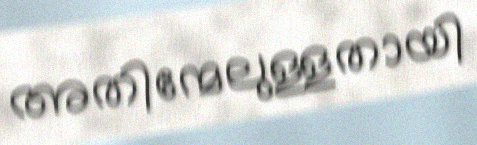
അതിന്മേലുള്ളതായി